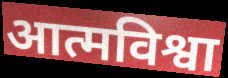
आत्मविश्वा